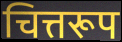
चित्तरूप